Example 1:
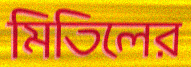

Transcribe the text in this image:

মিতিলের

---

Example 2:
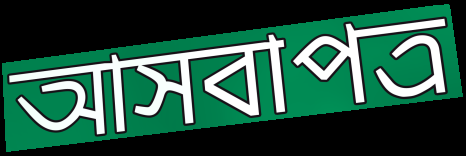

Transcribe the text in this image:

আসবাপত্র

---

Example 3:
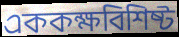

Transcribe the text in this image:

এককক্ষবিশিষ্ট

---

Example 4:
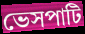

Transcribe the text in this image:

ভেসপাটি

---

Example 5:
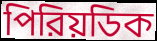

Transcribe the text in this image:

পিরিয়ডিক